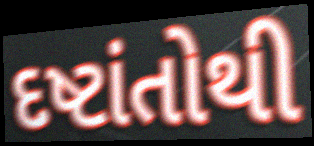
દષ્ટાંતોથી